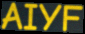
AIYF